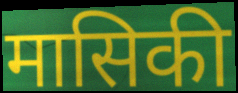
मासिकी